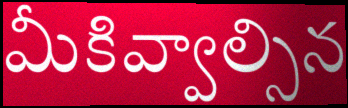
మీకివ్వాల్సిన